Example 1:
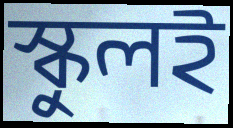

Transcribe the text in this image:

স্কুলই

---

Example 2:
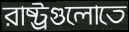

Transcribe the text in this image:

রাষ্ট্রগুলোতে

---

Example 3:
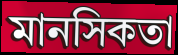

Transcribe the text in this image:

মানসিকতা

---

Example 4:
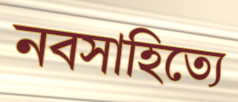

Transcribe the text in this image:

নবসাহিত্যে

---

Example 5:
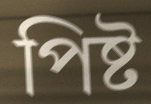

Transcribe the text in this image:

পিষ্ট